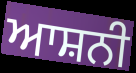
ਆਸ਼ਨੀ